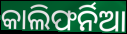
କାଲିଫର୍ନିଆ